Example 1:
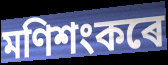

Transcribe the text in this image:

মণিশংকৰে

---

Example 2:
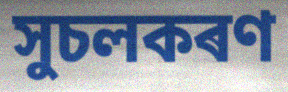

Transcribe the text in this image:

সুচলকৰণ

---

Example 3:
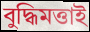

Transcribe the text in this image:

বুদ্ধিমত্তাই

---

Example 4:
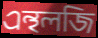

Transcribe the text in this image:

এন্থলজি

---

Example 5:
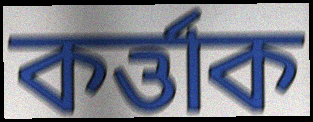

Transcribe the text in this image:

কৰ্ত্তাক